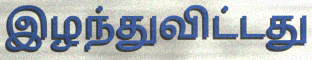
இழந்துவிட்டது